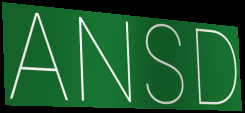
ANSD